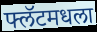
फ्लॅटमधला